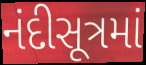
નંદીસૂત્રમાં